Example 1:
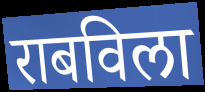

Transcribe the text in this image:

राबविला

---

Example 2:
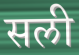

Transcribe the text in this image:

सली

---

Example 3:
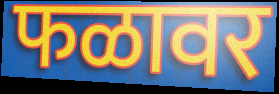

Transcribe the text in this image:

फळावर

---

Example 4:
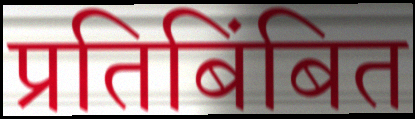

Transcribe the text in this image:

प्रतिबिंबित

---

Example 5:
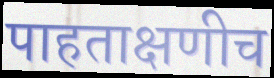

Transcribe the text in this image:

पाहताक्षणीच